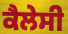
ਕੈਲੇਸੀ